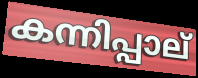
കന്നിപ്പാല്